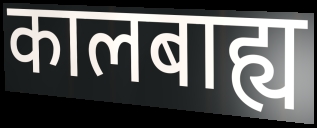
कालबाह्य